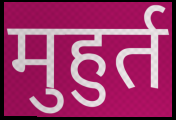
मुहुर्त